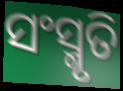
ସଂସ୍ମୃତି